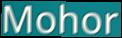
Mohor